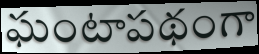
ఘంటాపథంగా